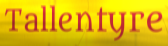
Tallentyre